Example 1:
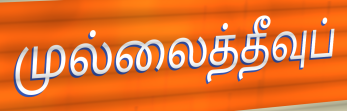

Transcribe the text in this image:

முல்லைத்தீவுப்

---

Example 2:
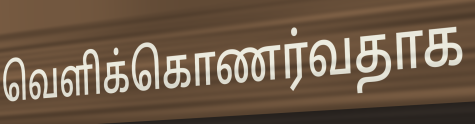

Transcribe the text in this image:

வெளிக்கொணர்வதாக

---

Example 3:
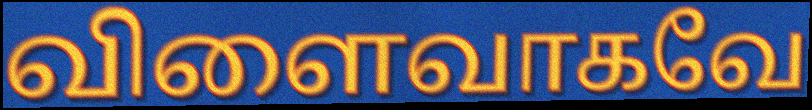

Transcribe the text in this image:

விளைவாகவே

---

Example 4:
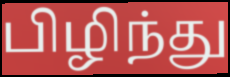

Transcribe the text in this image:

பிழிந்து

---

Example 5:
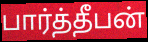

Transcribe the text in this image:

பார்த்தீபன்